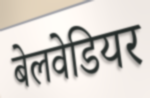
बेलवेडियर